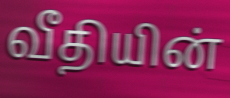
வீதியின்